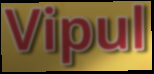
Vipul